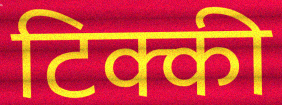
टिक्की